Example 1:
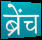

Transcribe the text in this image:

ब्रेंच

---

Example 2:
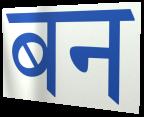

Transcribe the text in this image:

बन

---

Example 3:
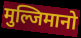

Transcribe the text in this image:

मुल्जिमानो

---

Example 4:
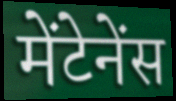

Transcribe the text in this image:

मेंटेनेंस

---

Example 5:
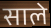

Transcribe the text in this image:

साले